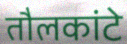
तौलकांटे